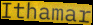
Ithamar